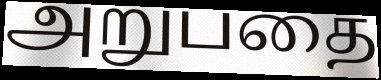
அறுபதை